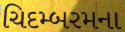
ચિદમ્બરમના